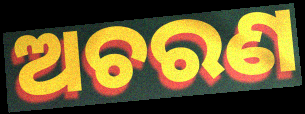
ଅଚରଣ